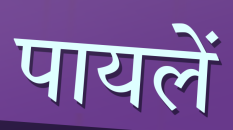
पायलें